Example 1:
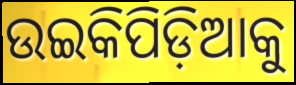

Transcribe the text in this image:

ଉଇକିପିଡ଼ିଆକୁ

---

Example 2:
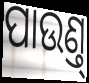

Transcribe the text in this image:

ପାଉଣ୍ତ୍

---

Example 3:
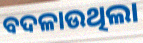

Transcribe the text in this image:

ବଦଳାଉଥିଲା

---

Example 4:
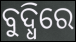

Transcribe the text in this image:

ବୁଦ୍ଧିରେ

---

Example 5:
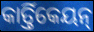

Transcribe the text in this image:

କାର୍ତ୍ତିକେୟନ୍